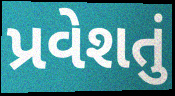
પ્રવેશતું